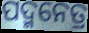
ପଦ୍ମନେତ୍ର